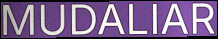
MUDALIAR